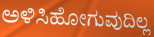
ಅಳಿಸಿಹೋಗುವುದಿಲ್ಲ